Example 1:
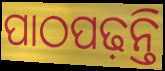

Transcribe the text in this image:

ପାଠପଢ଼ନ୍ତି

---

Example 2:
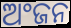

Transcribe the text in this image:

ଅଂଜନ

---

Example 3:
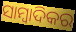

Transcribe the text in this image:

ସାମ୍ବାଦିକର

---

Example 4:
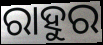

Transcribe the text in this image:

ରାହୁର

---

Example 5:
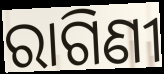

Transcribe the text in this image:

ରାଗିଣୀ